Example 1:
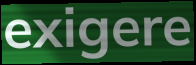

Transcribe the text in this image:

exigere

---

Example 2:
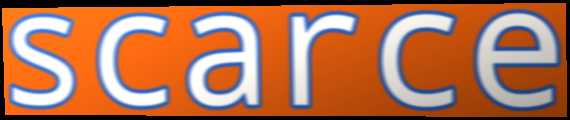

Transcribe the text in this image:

scarce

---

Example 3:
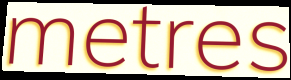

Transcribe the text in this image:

metres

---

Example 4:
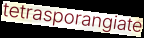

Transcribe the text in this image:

tetrasporangiate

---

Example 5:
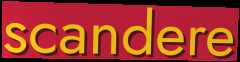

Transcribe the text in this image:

scandere